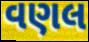
વણલ